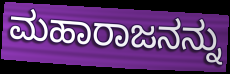
ಮಹಾರಾಜನನ್ನು